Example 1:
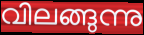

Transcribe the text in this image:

വിലങ്ങുന്നു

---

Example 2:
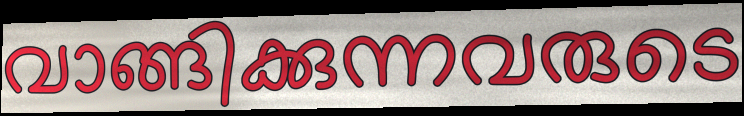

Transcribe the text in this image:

വാങ്ങിക്കുന്നവരുടെ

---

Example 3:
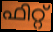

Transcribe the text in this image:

ഫിറ്റ്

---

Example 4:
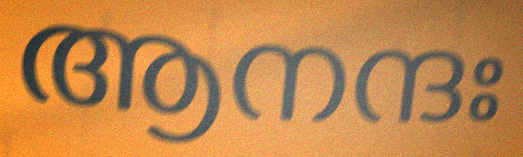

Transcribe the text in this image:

ആനന്ദഃ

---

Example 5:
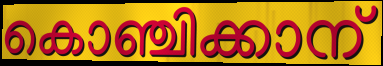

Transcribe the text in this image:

കൊഞ്ചിക്കാന്